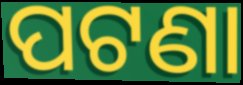
ପଟଣା